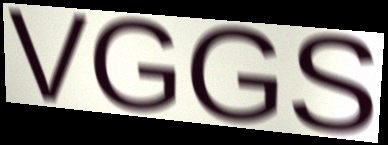
VGGS